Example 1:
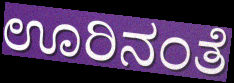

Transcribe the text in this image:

ಊರಿನಂತೆ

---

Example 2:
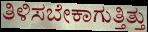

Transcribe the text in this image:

ತಿಳಿಸಬೇಕಾಗುತ್ತಿತ್ತು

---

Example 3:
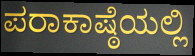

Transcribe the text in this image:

ಪರಾಕಾಷ್ಠೆಯಲ್ಲಿ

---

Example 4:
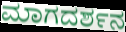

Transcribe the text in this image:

ಮಾಗದರ್ಶನ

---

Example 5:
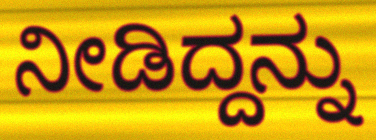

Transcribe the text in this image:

ನೀಡಿದ್ದನ್ನು